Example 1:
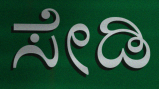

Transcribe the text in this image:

ಸೇಡಿ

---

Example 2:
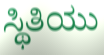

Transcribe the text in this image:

ಸ್ಥಿತಿಯು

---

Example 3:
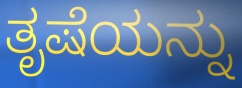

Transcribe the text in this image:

ತೃಷೆಯನ್ನು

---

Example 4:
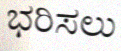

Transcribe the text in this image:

ಭರಿಸಲು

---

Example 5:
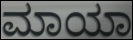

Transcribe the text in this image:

ಮಾಯಾ